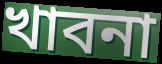
খাবনা